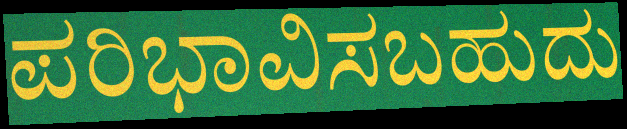
ಪರಿಭಾವಿಸಬಹುದು